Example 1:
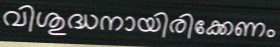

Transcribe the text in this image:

വിശുദ്ധനായിരിക്കേണം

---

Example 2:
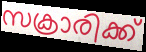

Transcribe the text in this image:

സക്രാരിക്ക്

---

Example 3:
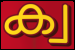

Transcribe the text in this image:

ക്വ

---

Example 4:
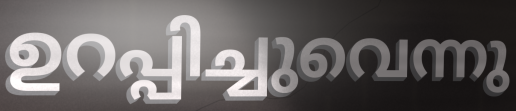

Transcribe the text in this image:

ഉറപ്പിച്ചുവെന്നു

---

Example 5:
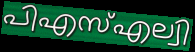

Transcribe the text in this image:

പിഎസ്എല്വി